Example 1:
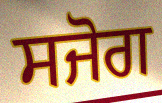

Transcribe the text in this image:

ਸਜੋਗ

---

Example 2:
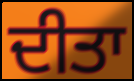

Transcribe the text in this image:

ਦੀਤਾ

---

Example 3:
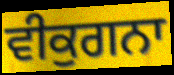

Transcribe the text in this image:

ਵੀਕੁਗਨਾ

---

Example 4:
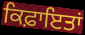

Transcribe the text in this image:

ਕਿਫ਼ਾਇਤਾਂ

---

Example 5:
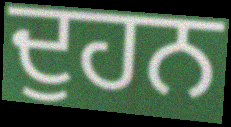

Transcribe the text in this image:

ਦੁਹਨ